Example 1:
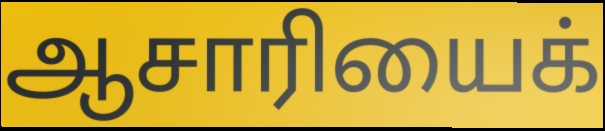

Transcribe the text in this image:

ஆசாரியைக்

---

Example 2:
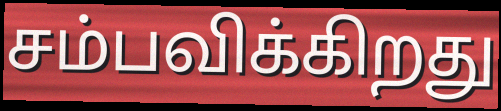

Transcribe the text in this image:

சம்பவிக்கிறது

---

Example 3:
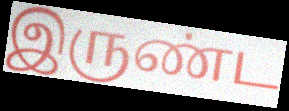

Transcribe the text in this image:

இருண்ட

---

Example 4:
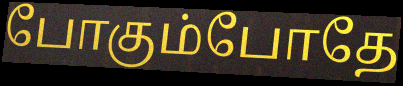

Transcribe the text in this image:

போகும்போதே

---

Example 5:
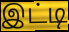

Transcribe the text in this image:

இட்டி